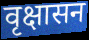
वृक्षासन